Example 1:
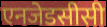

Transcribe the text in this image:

एनजेडसीसी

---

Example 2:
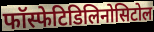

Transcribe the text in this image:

फॉस्फेटिडिलिनोसिटोल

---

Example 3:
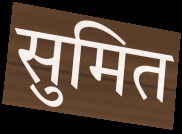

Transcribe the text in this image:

सुमित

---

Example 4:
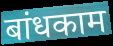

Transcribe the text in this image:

बांधकाम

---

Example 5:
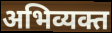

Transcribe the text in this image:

अभिव्यक्त